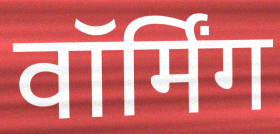
वॉर्मिंग